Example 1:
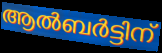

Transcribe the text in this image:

ആൽബർട്ടിന്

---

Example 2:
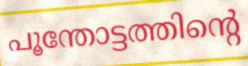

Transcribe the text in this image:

പൂന്തോട്ടത്തിന്റെ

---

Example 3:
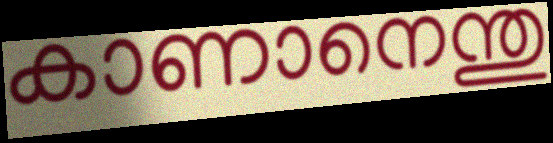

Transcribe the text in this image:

കാണാനെന്തു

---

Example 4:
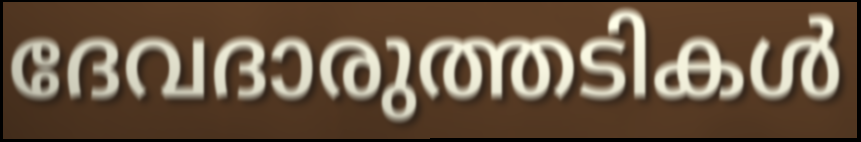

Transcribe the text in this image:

ദേവദാരുത്തടികൾ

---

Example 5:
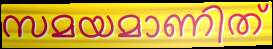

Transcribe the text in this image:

സമയമാണിത്